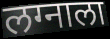
लग्नाला